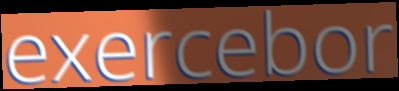
exercebor